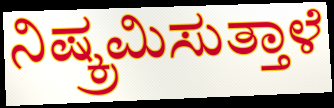
ನಿಷ್ಕ್ರಮಿಸುತ್ತಾಳೆ